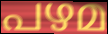
പഴമ